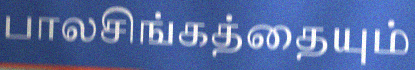
பாலசிங்கத்தையும்